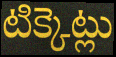
టిక్కెట్లు